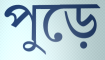
পুড়ে